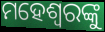
ମହେଶ୍ଵରଙ୍କୁ